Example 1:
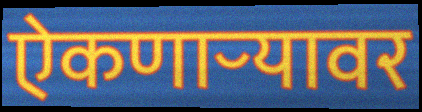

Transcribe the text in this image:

ऐकणाऱ्यावर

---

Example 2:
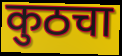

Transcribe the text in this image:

कुठचा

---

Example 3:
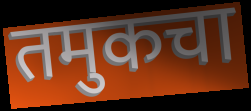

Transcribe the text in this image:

तमुकचा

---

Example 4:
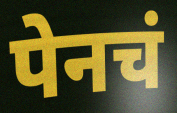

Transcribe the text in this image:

पेनचं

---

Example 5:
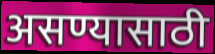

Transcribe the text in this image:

असण्यासाठी